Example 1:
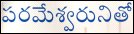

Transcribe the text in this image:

పరమేశ్వరునితో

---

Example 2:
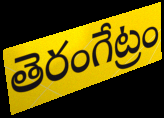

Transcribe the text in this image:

తెరంగేట్రం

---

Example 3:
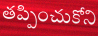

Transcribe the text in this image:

తప్పించుకోని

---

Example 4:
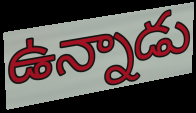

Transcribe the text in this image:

ఉన్నాడు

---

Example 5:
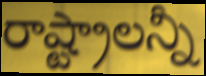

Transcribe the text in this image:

రాష్ట్రాలన్నీ